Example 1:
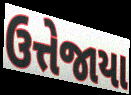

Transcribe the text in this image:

ઉત્તેજાયા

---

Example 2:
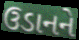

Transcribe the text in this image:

ઉડાનને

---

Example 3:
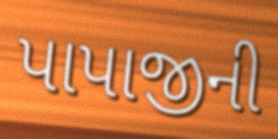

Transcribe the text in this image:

પાપાજીની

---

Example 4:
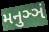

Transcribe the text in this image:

મનુઞ્ઞં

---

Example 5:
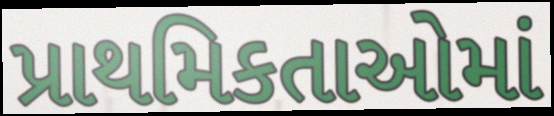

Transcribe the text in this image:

પ્રાથમિકતાઓમાં